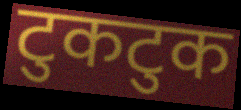
टुकटुक